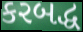
કરબદ્ધ